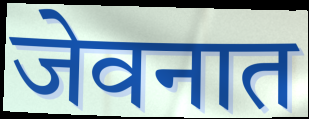
जेवनात